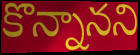
కొన్నానని